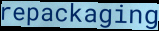
repackaging